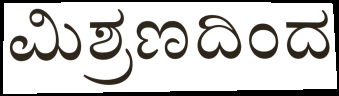
ಮಿಶ್ರಣದಿಂದ